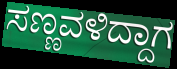
ಸಣ್ಣವಳಿದ್ದಾಗ